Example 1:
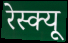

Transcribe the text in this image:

रेस्क्यू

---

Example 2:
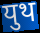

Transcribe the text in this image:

युथ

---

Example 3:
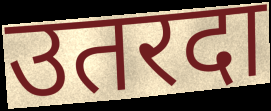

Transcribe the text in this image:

उतरदा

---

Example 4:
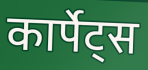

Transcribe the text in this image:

कार्पेट्स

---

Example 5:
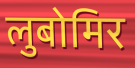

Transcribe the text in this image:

लुबोमिर